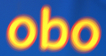
obo